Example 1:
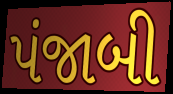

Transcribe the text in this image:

પંજાબી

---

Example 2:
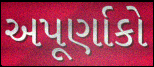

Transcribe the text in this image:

અપૂર્ણાકો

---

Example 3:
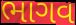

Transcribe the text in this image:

ભાગવ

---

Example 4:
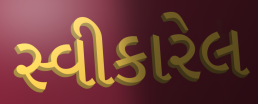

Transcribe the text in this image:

સ્વીકારેલ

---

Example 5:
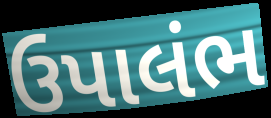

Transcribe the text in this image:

ઉપાલંભ